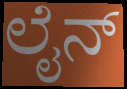
ಲೈನ್